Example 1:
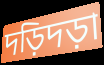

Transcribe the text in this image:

দড়িদড়া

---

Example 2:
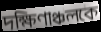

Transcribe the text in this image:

দক্ষিণাঞ্চলকে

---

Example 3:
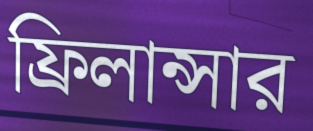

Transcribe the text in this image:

ফ্রিলান্সার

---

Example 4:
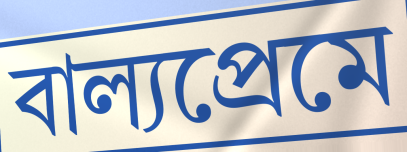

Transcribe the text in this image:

বাল্যপ্রেমে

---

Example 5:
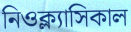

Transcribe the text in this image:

নিওক্ল্যাসিকাল